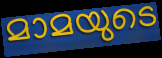
മാമയുടെ